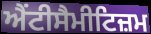
ਐਂਟੀਸੈਮੀਟਿਜ਼ਮ